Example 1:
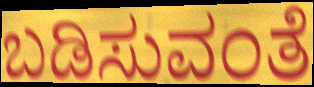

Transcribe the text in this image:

ಬಡಿಸುವಂತೆ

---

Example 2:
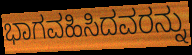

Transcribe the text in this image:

ಭಾಗವಹಿಸಿದವರನ್ನು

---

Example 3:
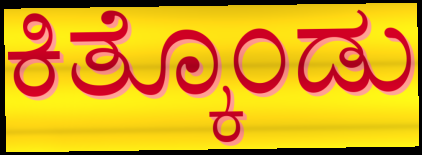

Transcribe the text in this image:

ಕಿತ್ಕೊಂಡು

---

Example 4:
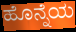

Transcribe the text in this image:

ಹೊನ್ನೆಯ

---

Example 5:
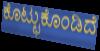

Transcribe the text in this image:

ಕೊಟ್ಟುಕೊಂಡಿದೆ